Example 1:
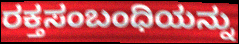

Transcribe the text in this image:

ರಕ್ತಸಂಬಂಧಿಯನ್ನು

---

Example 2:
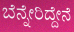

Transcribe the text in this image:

ಬೆನ್ನೇರಿದ್ದೇನೆ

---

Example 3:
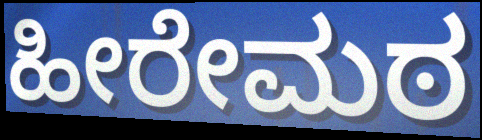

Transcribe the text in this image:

ಹೀರೇಮಠ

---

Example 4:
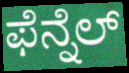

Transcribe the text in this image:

ಫೆನ್ನೆಲ್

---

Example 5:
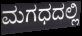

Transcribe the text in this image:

ಮಗಧದಲ್ಲಿ